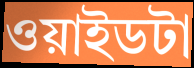
ওয়াইডটা